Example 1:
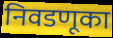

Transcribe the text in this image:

निवडणूका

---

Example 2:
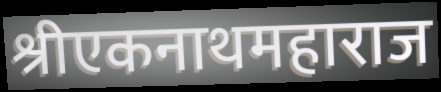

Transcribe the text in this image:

श्रीएकनाथमहाराज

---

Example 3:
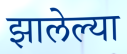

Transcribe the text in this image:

झालेल्या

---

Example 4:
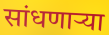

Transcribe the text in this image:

सांधणार्‍या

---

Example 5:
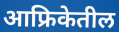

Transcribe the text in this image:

आफ्रिकेतील